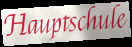
Hauptschule